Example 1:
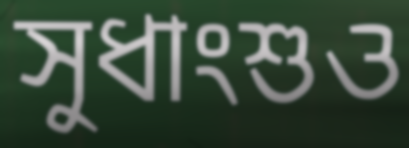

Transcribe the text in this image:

সুধাংশুও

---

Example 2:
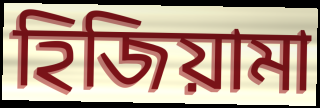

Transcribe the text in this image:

হিজিয়ামা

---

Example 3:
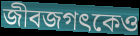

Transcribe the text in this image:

জীবজগৎকেও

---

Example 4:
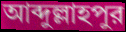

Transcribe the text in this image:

আব্দুল্লাহপুর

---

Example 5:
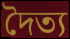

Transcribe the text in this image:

দৈত্য